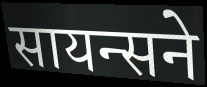
सायन्सने